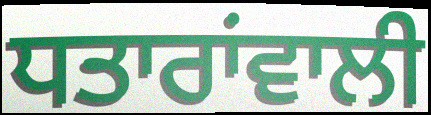
ਧਤਾਰਾਂਵਾਲੀ